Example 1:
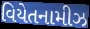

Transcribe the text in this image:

વિયેતનામીઝ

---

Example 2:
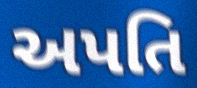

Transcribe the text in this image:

અપતિ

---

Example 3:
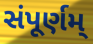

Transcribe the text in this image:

સંપૂર્ણમ્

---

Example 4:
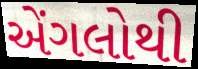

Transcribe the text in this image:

એંગલોથી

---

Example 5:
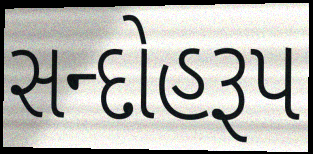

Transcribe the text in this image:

સન્દોહરૂપ